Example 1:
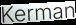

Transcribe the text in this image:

Kerman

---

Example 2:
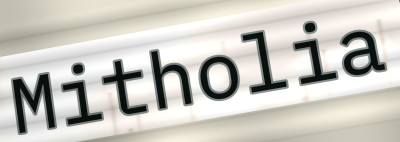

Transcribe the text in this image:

Mitholia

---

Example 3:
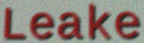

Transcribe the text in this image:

Leake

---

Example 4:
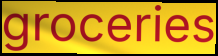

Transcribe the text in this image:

groceries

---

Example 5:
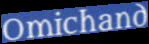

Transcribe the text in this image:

Omichand